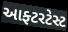
આફ્ટરટેસ્ટ